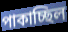
পাকাচ্ছিল